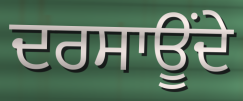
ਦਰਸਾਊਂਦੇ